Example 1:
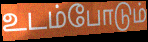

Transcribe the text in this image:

உடம்போடும்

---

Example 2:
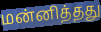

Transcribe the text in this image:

மன்னித்தது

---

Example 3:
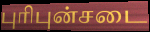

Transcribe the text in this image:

புரிபுன்சடை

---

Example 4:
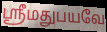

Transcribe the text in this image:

ஸ்ரீமதுபயவே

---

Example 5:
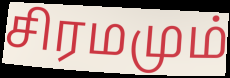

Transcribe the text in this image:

சிரமமும்